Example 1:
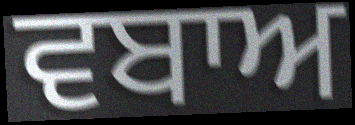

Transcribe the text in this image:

ਵਬਾਅ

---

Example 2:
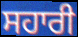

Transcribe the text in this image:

ਸਹਾਰੀ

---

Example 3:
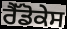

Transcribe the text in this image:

ਰੈੱਡੋਕੇਸ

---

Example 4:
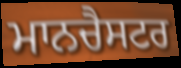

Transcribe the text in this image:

ਮਾਨਚੈਸਟਰ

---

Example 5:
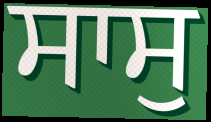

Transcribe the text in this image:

ਸਾਸੁ